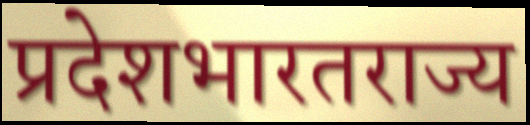
प्रदेशभारतराज्य